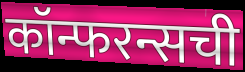
कॉन्फरन्सची